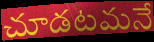
చూడటమనే